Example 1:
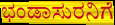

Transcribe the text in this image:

ಭಂಡಾಸುರನಿಗೆ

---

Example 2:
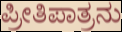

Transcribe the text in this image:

ಪ್ರೀತಿಪಾತ್ರನು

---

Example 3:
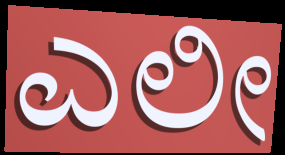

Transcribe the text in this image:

ಎಲೀ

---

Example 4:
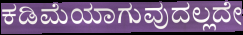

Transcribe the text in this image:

ಕಡಿಮೆಯಾಗುವುದಲ್ಲದೇ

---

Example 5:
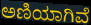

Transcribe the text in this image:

ಅಣಿಯಾಗಿವೆ